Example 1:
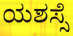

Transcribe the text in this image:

ಯಶಸ್ಸೆ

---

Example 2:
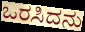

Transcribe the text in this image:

ಒರಸಿದನು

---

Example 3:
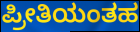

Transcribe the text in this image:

ಪ್ರೀತಿಯಂತಹ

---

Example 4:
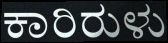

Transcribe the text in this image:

ಕಾರಿರುಳು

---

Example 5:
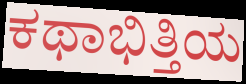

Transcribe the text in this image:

ಕಥಾಭಿತ್ತಿಯ